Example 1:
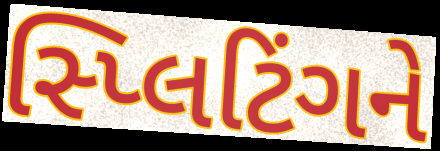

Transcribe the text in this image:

સ્પ્લિટિંગને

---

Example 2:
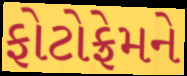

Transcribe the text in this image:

ફોટોફ્રેમને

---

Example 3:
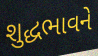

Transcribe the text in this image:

શુદ્ધભાવને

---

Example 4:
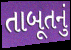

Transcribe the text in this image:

તાબૂતનું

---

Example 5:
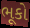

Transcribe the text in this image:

ભૂકો